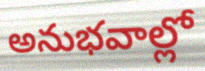
అనుభవాల్లో